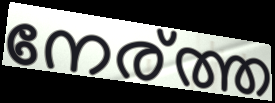
നേര്ത്ത